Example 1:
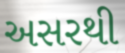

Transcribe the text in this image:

અસરથી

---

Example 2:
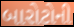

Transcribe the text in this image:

બારોટોની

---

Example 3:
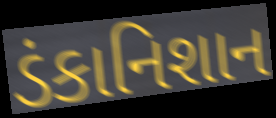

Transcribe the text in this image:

ડંકાનિશાન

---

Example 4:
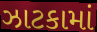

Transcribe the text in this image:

ઝાટકામાં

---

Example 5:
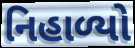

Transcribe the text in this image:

નિહાળ્યો